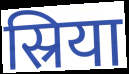
स्रिया